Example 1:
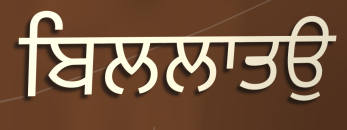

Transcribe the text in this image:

ਬਿਲਲਾਤਉ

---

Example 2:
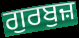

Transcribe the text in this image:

ਗੁਰਬੁਜ਼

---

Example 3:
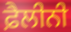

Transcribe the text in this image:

ਫ਼ੈਲੀਨੀ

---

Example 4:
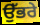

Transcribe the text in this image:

ਉੱਭਰੇ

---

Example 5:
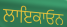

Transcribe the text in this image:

ਲਾਇਕਾਓਨ